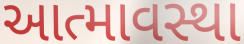
આત્માવસ્થા